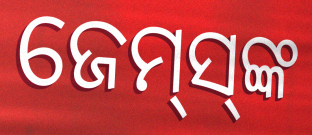
ଜେମ୍‌ସ୍‌ଙ୍କ